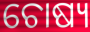
ଚୋଷ୍ୟ